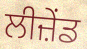
ਲੀਜ਼ੇਂਡ